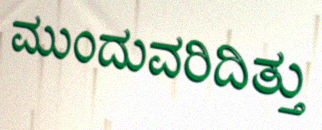
ಮುಂದುವರಿದಿತ್ತು